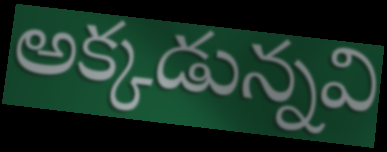
అక్కడున్నవి